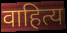
वाहित्य